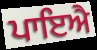
ਪਾਇਐ